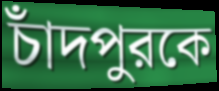
চাঁদপুরকে